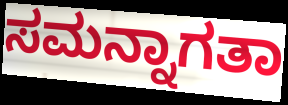
ಸಮನ್ನಾಗತಾ